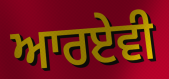
ਆਰਏਵੀ